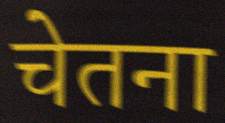
चेतना